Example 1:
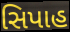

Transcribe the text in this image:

સિપાહ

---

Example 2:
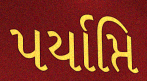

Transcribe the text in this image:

પર્યાપ્તિ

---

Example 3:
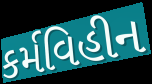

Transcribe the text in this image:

કર્મવિહીન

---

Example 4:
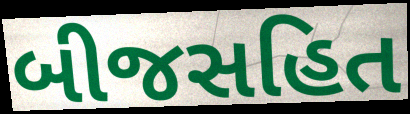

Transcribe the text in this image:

બીજસહિત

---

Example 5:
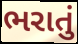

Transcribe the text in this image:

ભરાતું